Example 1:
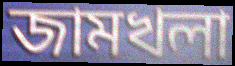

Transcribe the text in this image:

জামখলা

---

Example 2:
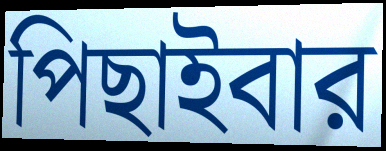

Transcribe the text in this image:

পিছাইবার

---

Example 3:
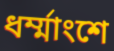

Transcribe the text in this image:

ধর্ম্মাংশে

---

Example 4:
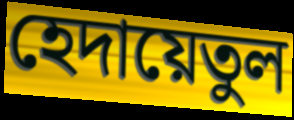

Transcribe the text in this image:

হেদায়েতুল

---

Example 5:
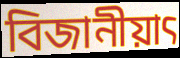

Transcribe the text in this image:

বিজানীয়াৎ